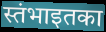
स्तंभाइतका